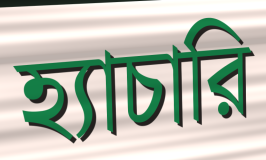
হ্যাচারি